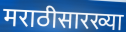
मराठीसारख्या